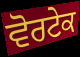
ਵੋਰਟੇਕ